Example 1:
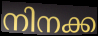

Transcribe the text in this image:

നിനക്ക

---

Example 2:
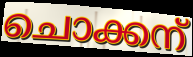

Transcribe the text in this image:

ചൊക്കന്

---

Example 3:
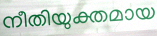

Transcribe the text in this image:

നീതിയുക്തമായ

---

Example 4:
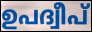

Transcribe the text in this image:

ഉപദ്വീപ്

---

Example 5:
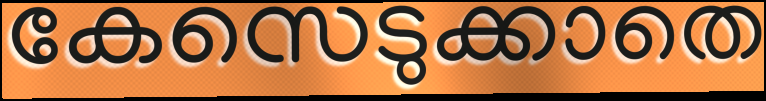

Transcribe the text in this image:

കേസെടുക്കാതെ